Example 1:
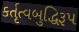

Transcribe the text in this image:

કર્તૃત્વબુદ્ધિરૂપ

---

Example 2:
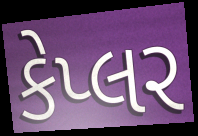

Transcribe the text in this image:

કેપ્લર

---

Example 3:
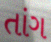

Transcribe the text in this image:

તાંગ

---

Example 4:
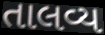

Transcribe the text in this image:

તાલવ્ય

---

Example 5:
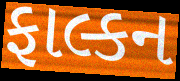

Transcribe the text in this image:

ફાલ્કન